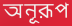
অনূরূপ